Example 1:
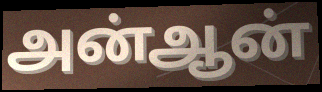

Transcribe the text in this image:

அன்ஆன்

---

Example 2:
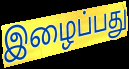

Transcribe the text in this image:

இழைப்பது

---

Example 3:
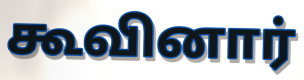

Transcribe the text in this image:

கூவினார்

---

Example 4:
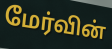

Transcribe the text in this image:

மேர்வின்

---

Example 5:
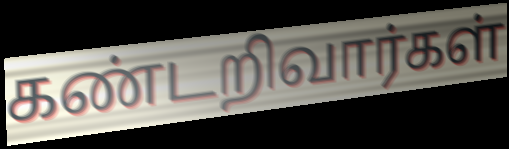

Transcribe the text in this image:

கண்டறிவார்கள்